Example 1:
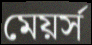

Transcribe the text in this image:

মেয়র্স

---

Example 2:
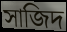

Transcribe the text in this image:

সাজিদ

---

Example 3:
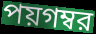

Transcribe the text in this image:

পয়গম্বর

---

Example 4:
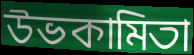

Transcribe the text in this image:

উভকামিতা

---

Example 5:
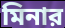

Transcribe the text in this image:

মিনার